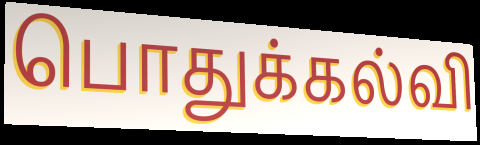
பொதுக்கல்வி